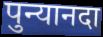
पुन्यानदा